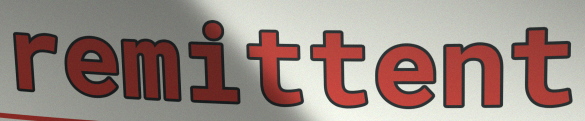
remittent